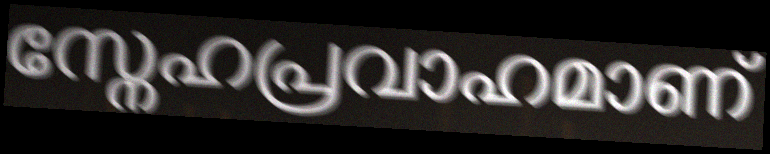
സ്നേഹപ്രവാഹമാണ്